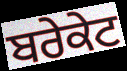
ਬਰੇਕੇਟ